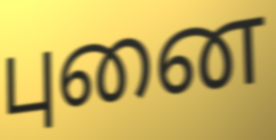
புனை